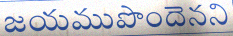
జయముపొందెనని